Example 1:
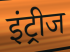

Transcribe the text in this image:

इंट्रीज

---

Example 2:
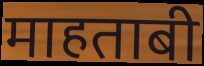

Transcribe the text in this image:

माहताबी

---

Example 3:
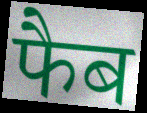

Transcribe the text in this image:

फैब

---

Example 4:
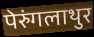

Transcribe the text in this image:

पेरुंगलाथुर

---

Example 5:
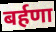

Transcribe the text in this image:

बर्हणा